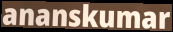
ananskumar